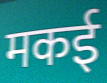
मकई